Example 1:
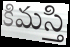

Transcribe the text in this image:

కిమస్తి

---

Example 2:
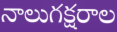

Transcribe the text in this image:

నాలుగక్షరాల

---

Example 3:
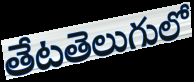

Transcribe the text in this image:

తేటతెలుగులో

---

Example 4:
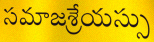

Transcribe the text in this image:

సమాజశ్రేయస్సు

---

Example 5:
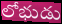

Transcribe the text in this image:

లోభుడు